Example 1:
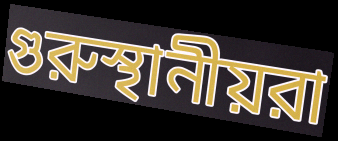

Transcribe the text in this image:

গুরুস্থানীয়রা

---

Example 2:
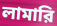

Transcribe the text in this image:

লামারি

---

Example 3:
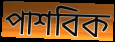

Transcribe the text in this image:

পাশবিক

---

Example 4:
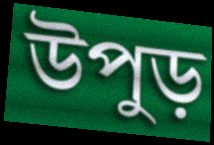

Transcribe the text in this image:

উপুড়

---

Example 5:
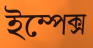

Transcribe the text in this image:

ইম্পেক্স